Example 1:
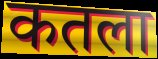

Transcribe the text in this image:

कतला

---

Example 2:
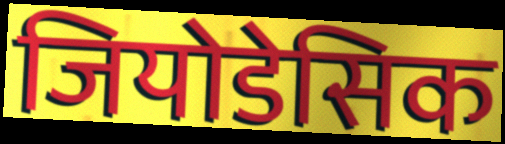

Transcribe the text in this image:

जियोडेसिक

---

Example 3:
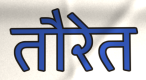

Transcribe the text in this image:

तौरेत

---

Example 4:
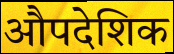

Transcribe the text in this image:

औपदेशिक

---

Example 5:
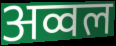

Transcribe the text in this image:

अव्वल